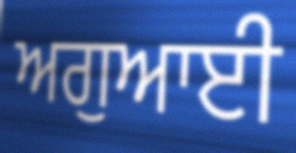
ਅਗੁਆਈ